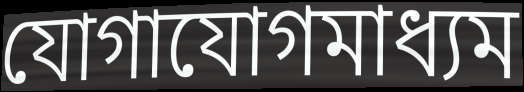
যোগাযোগমাধ্যম